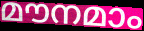
മൗനമാം